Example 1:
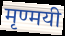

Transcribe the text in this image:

मृण्मयी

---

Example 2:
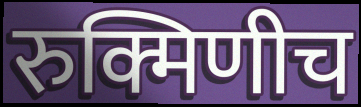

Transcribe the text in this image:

रुक्मिणीच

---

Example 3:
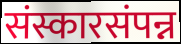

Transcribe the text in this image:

संस्कारसंपन्न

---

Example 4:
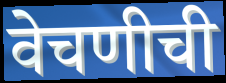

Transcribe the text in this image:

वेचणीची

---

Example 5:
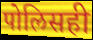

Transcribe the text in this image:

पोलिसही